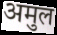
अमुल